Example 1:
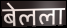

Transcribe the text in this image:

बेलला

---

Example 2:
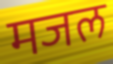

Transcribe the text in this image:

मजल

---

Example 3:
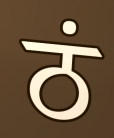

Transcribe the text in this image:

ठं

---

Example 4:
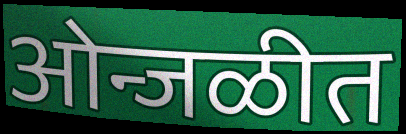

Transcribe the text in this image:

ओन्जळीत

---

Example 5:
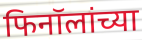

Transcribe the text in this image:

फिनॉलांच्या